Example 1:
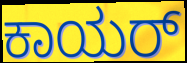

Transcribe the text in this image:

ಕಾಯರ್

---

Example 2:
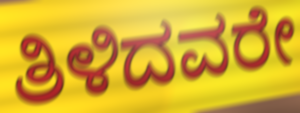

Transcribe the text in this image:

ತಿಳಿದವರೇ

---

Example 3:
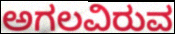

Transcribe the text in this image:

ಅಗಲವಿರುವ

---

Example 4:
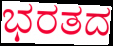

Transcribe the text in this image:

ಭರತದ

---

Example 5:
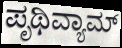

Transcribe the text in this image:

ಪೃಥಿವ್ಯಾಮ್